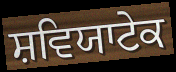
ਸ਼ਵਿਯਾਟੇਕ